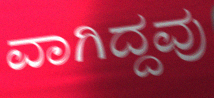
ವಾಗಿದ್ದವು